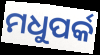
ମଧୁପର୍କ